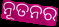
ନୂତନର